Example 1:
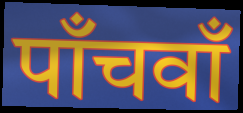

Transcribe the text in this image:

पाँचवाँ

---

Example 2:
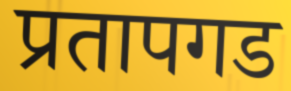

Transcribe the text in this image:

प्रतापगड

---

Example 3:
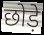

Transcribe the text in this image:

छोड़े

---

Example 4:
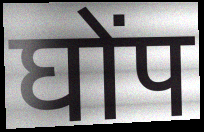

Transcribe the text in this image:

घोंप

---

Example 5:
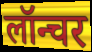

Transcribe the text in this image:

लॉन्चर